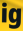
ig